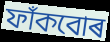
ফাঁকবোৰ